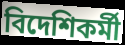
বিদেশিকর্মী